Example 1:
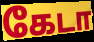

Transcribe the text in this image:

கேடா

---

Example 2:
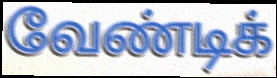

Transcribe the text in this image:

வேண்டிக்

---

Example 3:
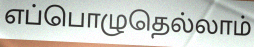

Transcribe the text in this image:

எப்பொழுதெல்லாம்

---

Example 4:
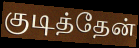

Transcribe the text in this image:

குடித்தேன்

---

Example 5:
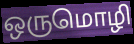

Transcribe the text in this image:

ஒருமொழி